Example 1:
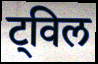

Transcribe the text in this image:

ट्विल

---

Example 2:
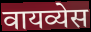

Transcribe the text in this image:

वायव्येस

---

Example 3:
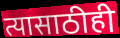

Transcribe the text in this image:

त्यासाठीही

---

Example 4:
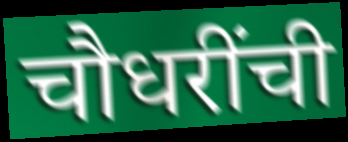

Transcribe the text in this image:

चौधरींची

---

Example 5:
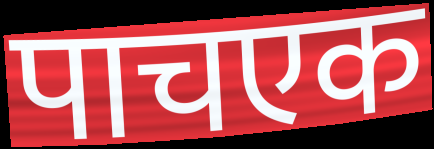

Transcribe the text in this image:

पाचएक